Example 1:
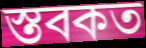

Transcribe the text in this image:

স্তবকত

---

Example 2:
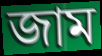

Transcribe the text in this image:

জাম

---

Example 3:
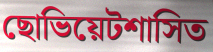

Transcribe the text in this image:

ছোভিয়েটশাসিত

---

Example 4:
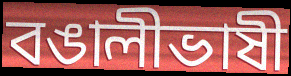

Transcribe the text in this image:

বঙালীভাষী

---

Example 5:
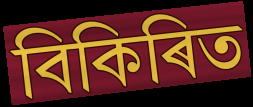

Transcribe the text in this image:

বিকিৰিত